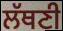
ਲੱਥਣੀ